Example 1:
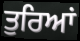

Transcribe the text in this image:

ਤੁਰਿਆਂ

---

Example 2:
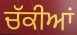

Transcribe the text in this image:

ਚੱਕੀਆਂ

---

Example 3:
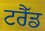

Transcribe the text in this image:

ਟਰੈੱਡ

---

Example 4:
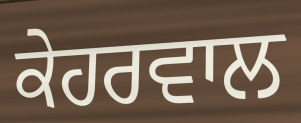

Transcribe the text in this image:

ਕੇਹਰਵਾਲ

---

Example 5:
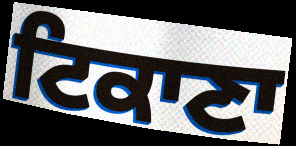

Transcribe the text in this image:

ਟਿਕਾਣਾ